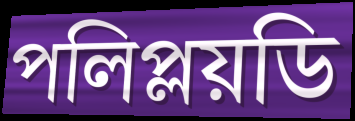
পলিপ্লয়ডি